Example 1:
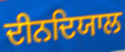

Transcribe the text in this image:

ਦੀਨਦਿਯਾਲ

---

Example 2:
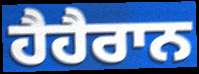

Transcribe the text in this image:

ਹੈਹੈਰਾਨ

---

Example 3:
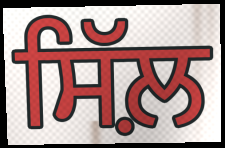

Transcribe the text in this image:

ਸਿੱਲ਼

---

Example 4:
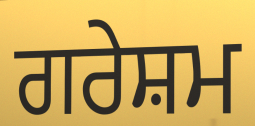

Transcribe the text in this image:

ਗਰੇਸ਼ਮ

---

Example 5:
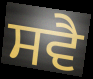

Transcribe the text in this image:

ਸਵੈ